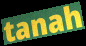
tanah